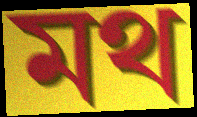
মথ